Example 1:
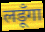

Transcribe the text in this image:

लड़ूँगा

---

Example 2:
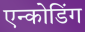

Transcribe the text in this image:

एन्कोडिंग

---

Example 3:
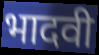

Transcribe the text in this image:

भादवी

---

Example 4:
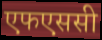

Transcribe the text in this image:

एफएससी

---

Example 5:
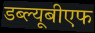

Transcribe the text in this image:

डब्ल्यूबीएफ